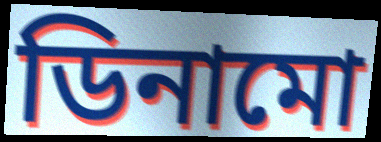
ডিনামো